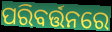
ପରିବର୍ତ୍ତନରେ